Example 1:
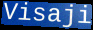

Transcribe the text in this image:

Visaji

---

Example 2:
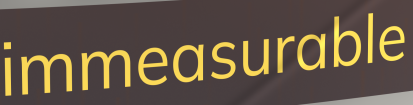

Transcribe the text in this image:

immeasurable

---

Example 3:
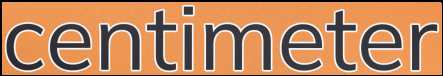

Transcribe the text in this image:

centimeter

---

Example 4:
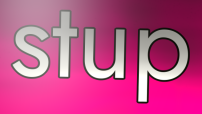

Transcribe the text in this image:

stup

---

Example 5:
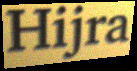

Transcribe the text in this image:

Hijra